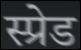
स्‍प्रेड